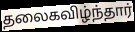
தலைகவிழ்ந்தார்